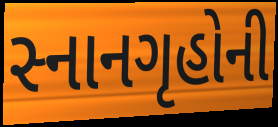
સ્નાનગૃહોની